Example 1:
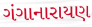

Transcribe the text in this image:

ગંગાનારાયણ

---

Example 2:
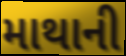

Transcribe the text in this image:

માથાની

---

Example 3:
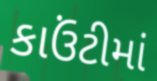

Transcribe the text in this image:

કાઉંટીમાં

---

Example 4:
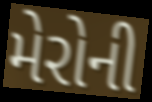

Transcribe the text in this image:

મેરોની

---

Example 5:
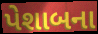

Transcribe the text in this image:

પેશાબના